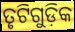
ତୃଟିଗୁଡ଼ିକ